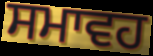
ਸਮਾਵਹ